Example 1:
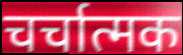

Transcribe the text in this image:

चर्चात्मक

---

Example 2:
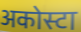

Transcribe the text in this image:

अकोस्टा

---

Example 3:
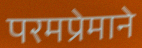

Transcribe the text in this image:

परमप्रेमाने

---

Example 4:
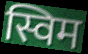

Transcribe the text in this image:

स्विम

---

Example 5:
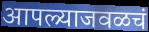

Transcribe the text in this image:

आपल्याजवळचं